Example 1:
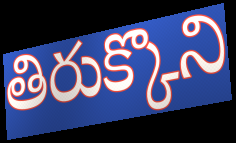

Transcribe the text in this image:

తిరుక్కొని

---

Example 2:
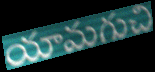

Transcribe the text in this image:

యామగుచి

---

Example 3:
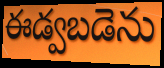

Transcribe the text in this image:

ఈడ్వబడెను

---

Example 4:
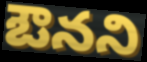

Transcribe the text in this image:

ఔనని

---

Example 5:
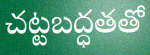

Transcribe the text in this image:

చట్టబద్ధతతో